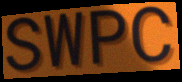
SWPC